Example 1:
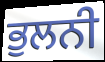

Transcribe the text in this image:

ਭੁਲਨੀ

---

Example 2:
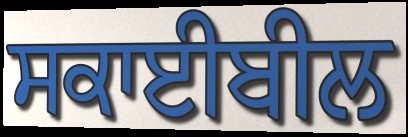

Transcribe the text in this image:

ਸਕਾਈਬੀਲ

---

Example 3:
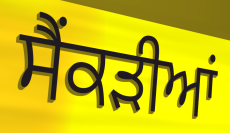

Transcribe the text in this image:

ਸੈਂਕੜੀਆਂ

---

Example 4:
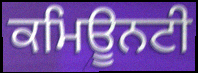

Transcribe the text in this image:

ਕਮਿਊਨਟੀ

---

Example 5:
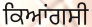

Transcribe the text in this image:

ਕਿਆਂਗਸੀ